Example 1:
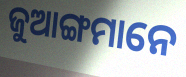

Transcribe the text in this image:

ଜୁଆଙ୍ଗମାନେ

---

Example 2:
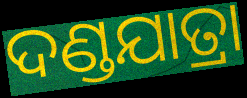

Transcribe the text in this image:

ଦଣ୍ଡଯାତ୍ରା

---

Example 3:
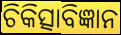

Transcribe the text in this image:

ଚିକିତ୍ସାବିଜ୍ଞାନ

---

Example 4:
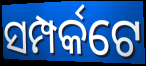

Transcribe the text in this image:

ସମ୍ପର୍କଟେ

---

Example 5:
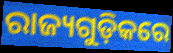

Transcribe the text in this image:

ରାଜ୍ୟଗୁଡ଼ିକରେ